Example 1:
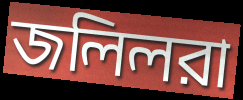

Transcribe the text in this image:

জলিলরা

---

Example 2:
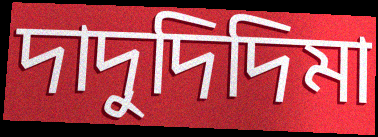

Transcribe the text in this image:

দাদুদিদিমা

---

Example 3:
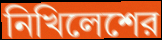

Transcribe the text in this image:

নিখিলেশের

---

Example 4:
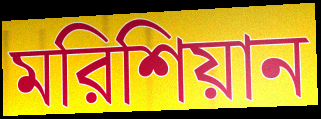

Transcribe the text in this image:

মরিশিয়ান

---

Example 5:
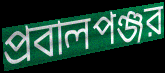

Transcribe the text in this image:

প্রবালপঞ্জর